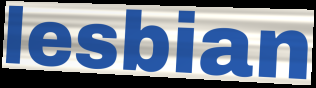
lesbian